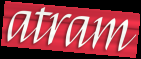
atram